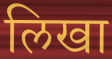
लिखा